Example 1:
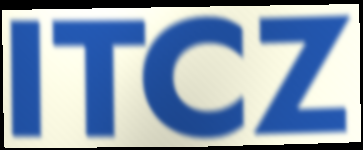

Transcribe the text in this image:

ITCZ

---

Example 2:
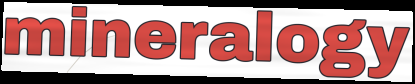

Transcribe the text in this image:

mineralogy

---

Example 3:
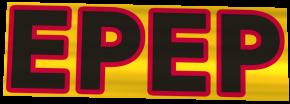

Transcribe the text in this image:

EPEP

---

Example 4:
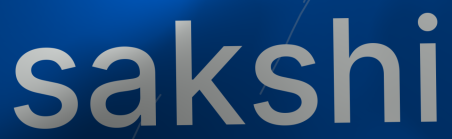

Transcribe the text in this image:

sakshi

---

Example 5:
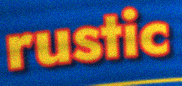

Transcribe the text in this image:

rustic